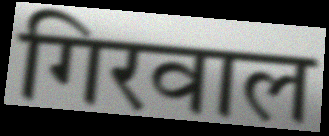
गिरवाल